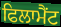
ਫਿਲਾਮੈਂਟ